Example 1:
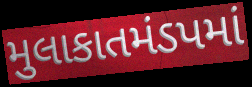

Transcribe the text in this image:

મુલાકાતમંડપમાં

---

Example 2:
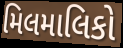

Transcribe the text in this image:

મિલમાલિકો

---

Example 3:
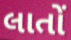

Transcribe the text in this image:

લાતોં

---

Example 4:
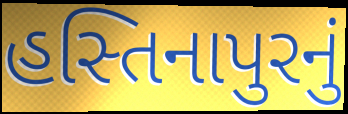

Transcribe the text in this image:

હસ્તિનાપુરનું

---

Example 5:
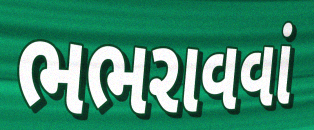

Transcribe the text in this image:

ભભરાવવાં